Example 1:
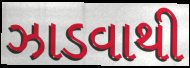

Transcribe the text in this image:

ઝાડવાથી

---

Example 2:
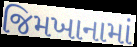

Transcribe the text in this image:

જિમખાનામાં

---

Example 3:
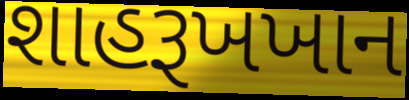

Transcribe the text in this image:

શાહરૂખખાન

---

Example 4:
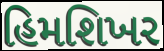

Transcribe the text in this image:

હિમશિખર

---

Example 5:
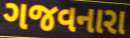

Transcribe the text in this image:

ગજવનારા